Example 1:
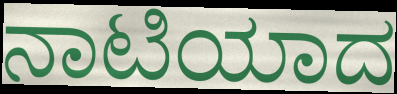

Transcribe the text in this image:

ನಾಟಿಯಾದ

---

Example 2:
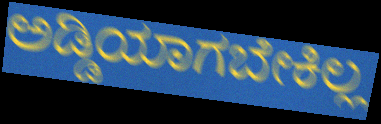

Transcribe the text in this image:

ಅಡ್ಡಿಯಾಗಬೇಕಿಲ್ಲ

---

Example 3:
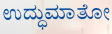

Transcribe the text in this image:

ಉದ್ಧುಮಾತೋ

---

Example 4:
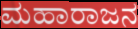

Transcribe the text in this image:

ಮಹಾರಾಜನ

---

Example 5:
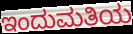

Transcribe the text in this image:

ಇಂದುಮತಿಯ